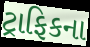
ટ્રાફિકના